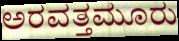
ಅರವತ್ತಮೂರು